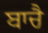
ਬਾਚੈ